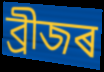
ব্ৰীজৰ